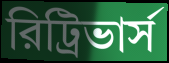
রিট্রিভার্স